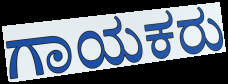
ಗಾಯಕರು